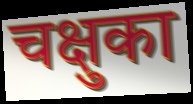
चक्षुका